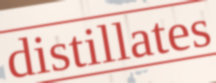
distillates